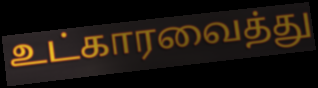
உட்காரவைத்து